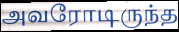
அவரோடிருந்த